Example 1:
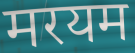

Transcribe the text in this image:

मरयम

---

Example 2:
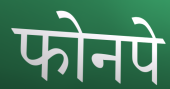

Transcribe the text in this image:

फोनपे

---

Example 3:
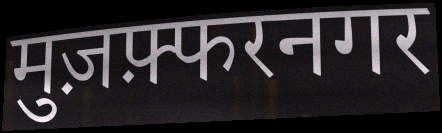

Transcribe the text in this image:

मुज़फ़्फरनगर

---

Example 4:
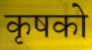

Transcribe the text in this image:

कृषको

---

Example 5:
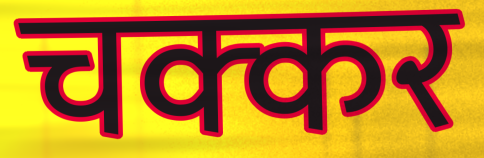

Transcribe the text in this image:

चक्‍कर